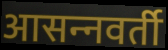
आसन्नवर्ती